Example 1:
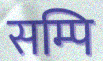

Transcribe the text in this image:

सम्पि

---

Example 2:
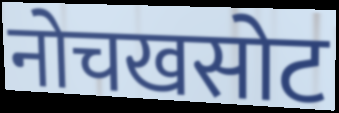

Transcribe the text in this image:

नोचखसोट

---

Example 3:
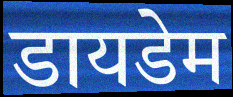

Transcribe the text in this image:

डायडेम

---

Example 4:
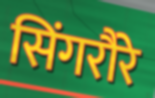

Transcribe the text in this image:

सिंगरौरे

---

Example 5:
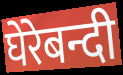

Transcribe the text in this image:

घेरेबन्दी